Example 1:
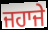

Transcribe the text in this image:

ਜਹਾਜੇ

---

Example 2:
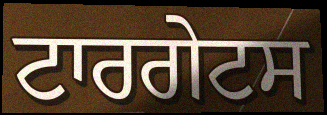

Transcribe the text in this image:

ਟਾਰਗੇਟਸ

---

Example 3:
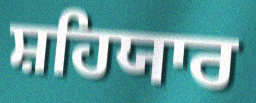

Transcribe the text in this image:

ਸ਼ਹਿਯਾਰ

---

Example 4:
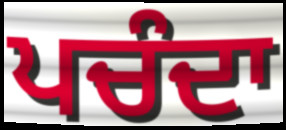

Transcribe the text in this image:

ਪਚੰਦਾ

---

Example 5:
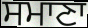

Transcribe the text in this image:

ਸਮਾਣਾ